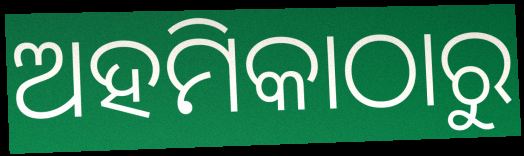
ଅହମିକାଠାରୁ